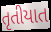
તૃતીયાત